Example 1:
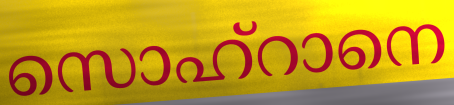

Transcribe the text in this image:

സൊഹ്റാനെ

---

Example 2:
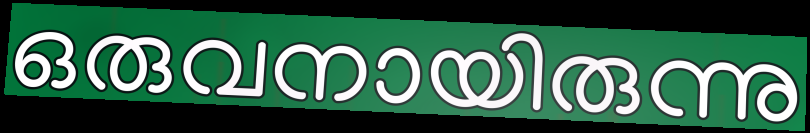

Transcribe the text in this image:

ഒരുവനായിരുന്നു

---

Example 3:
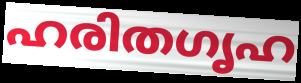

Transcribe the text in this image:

ഹരിതഗൃഹ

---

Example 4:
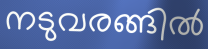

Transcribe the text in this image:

നടുവരങ്ങിൽ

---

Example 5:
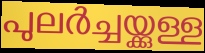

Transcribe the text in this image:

പുലർച്ചയ്ക്കുള്ള